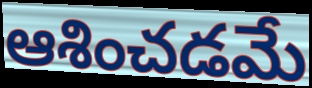
ఆశించడమే